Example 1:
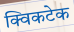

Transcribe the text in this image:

क्विकटेक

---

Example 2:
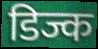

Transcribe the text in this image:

डिज्क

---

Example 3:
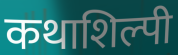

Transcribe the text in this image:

कथाशिल्पी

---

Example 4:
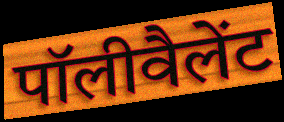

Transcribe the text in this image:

पॉलीवैलेंट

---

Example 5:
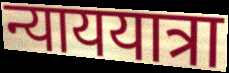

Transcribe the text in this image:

न्याययात्रा